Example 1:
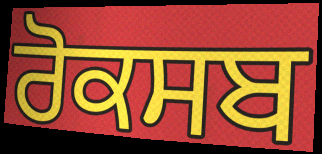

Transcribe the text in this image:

ਰੋਕਸਬ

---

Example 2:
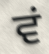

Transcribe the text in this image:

ਵਂ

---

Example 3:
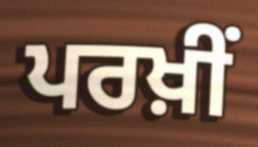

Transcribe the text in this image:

ਪਰਖ਼ੀਂ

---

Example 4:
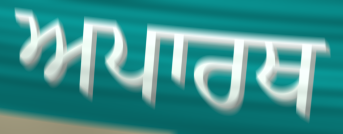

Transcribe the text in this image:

ਅਪਾਰਥ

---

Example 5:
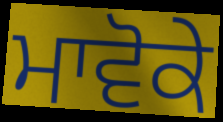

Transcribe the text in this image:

ਮਾਵੋਕੇ